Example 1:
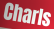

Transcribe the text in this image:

Charls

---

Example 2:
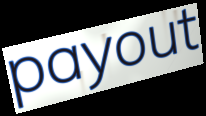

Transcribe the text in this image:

payout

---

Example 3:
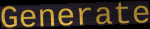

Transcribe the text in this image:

Generate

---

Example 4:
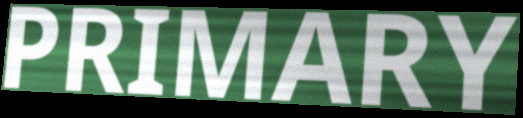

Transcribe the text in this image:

PRIMARY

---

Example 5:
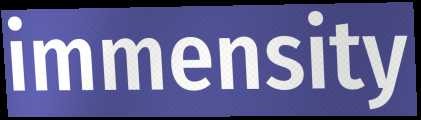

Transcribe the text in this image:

immensity